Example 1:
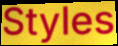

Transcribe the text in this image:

Styles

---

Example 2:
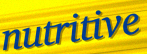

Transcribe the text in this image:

nutritive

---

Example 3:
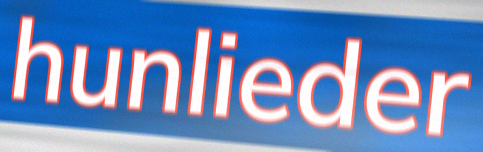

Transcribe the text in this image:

hunlieder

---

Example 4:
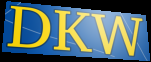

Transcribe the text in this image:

DKW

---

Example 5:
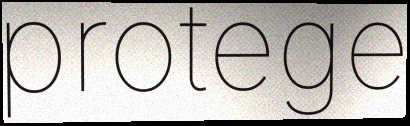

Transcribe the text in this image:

protege